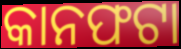
କାନଫଟା